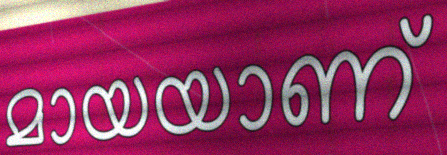
മായയാണ്